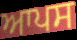
ਆਪਸ